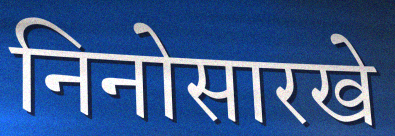
निनोसारखे